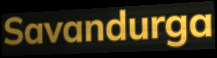
Savandurga